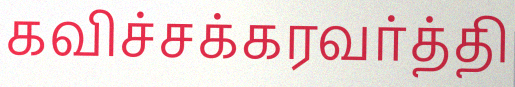
கவிச்சக்கரவர்த்தி